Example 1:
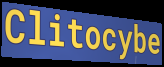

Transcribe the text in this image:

Clitocybe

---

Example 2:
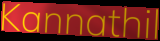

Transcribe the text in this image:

Kannathil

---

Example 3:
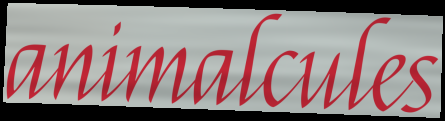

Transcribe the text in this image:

animalcules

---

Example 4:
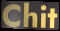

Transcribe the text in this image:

Chit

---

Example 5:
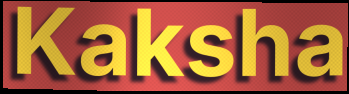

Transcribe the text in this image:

Kaksha